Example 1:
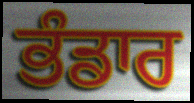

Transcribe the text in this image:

ਭੰਡਾਰ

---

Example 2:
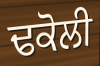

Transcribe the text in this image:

ਢਕੋਲੀ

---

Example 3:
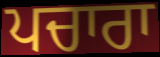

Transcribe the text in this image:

ਪਚਾਰਾ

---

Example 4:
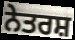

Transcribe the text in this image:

ਨੇਤਰਸ਼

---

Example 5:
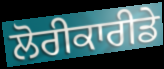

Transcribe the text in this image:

ਲੋਰੀਕਾਰੀਡੇ